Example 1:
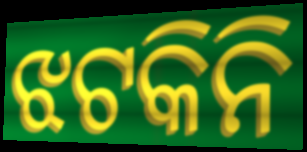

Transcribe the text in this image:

ଝଟକିନି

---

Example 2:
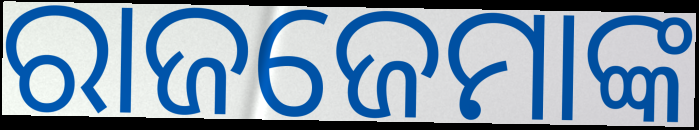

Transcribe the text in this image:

ରାଜଜେମାଙ୍କ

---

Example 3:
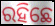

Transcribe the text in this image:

ରହିଛେ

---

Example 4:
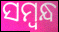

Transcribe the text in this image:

ସମ୍ୱନ୍ଧ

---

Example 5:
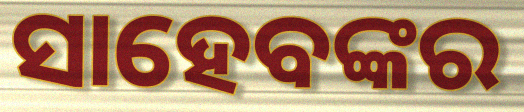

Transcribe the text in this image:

ସାହେବଙ୍କର